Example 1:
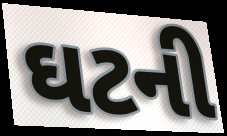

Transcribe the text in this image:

ઘટની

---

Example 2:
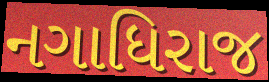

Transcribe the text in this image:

નગાધિરાજ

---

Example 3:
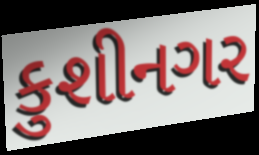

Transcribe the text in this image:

કુશીનગર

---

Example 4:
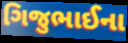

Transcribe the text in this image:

ગિજુભાઈના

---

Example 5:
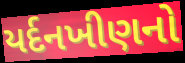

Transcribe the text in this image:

યર્દનખીણનો